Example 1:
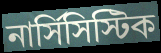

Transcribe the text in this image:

নার্সিসিস্টিক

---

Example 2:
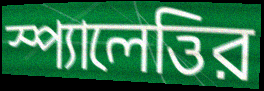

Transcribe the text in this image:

স্প্যালেত্তির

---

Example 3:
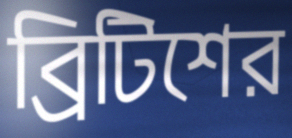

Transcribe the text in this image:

ব্রিটিশের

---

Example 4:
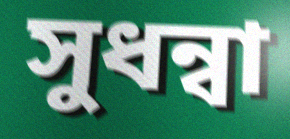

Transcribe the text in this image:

সুধন্বা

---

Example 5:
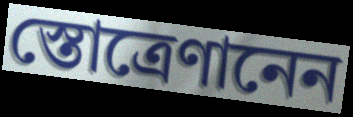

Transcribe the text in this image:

স্তোত্রেণানেন